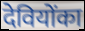
देवियोंका